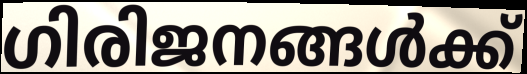
ഗിരിജനങ്ങൾക്ക്